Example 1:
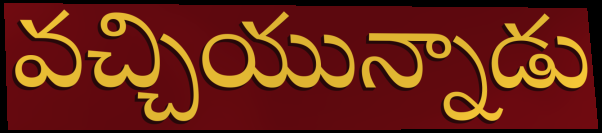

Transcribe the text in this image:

వచ్చియున్నాడు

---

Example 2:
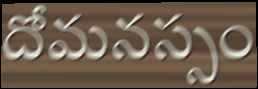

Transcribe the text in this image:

దోమనస్సం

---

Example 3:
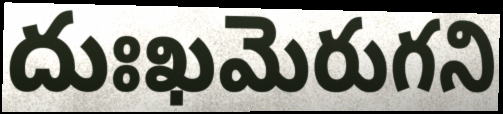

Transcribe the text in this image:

దుఃఖమెరుగని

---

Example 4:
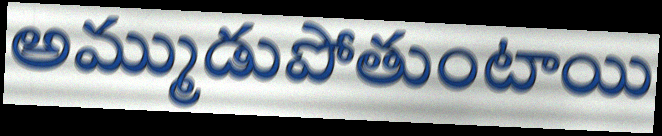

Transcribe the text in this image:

అమ్ముడుపోతుంటాయి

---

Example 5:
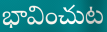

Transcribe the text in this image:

భావించుట